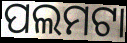
ପଲମଟା